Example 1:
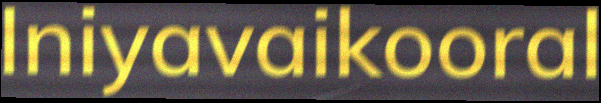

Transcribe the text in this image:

Iniyavaikooral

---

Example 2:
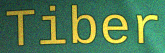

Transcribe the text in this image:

Tiber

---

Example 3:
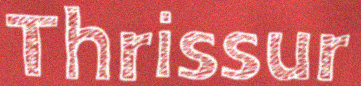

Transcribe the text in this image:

Thrissur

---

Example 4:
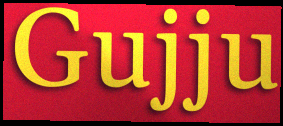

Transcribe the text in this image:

Gujju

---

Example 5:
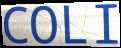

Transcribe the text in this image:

COLI